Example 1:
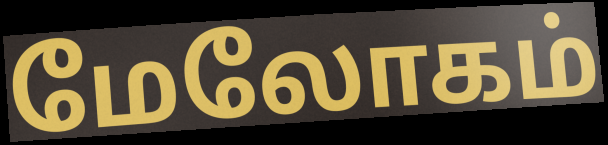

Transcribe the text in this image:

மேலோகம்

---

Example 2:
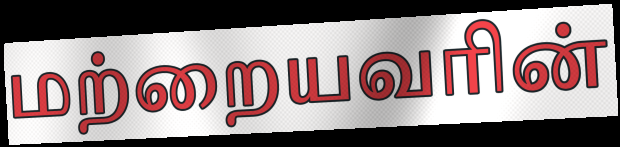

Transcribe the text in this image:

மற்றையவரின்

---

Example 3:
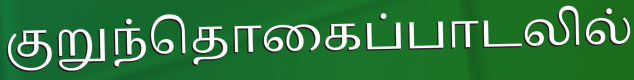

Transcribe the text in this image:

குறுந்தொகைப்பாடலில்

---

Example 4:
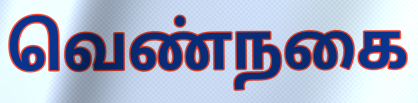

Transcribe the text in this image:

வெண்நகை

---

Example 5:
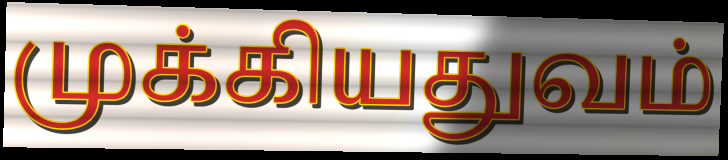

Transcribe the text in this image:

முக்கியதுவம்